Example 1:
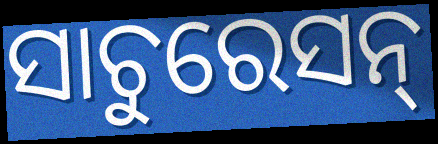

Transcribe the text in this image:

ସାଚୁରେସନ୍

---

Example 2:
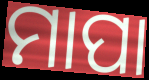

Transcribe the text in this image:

ମାପା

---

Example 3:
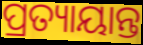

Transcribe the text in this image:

ପ୍ରତ୍ୟାୟାନ୍ତ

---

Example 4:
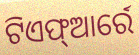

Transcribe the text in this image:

ଟିଏଫ୍ଆର୍ରେ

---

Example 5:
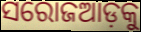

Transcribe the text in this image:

ସରୋଜଆଡ଼କୁ